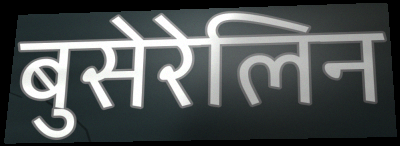
बुसेरेलिन